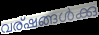
വര്ഷങ്ങൾക്കു